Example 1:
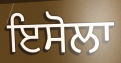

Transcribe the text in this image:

ਇਸੋਲਾ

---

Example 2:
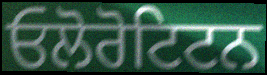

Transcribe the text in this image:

ਓਲੋਰੋਟਿਟਨ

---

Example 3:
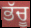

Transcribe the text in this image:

ਭੱਚੂ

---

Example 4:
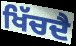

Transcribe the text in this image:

ਖਿੱਚਦੈ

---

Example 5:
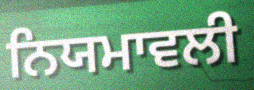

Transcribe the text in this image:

ਨਿਯਮਾਵਲੀ